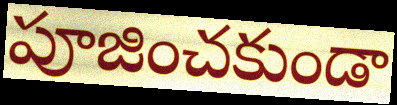
పూజించకుండా